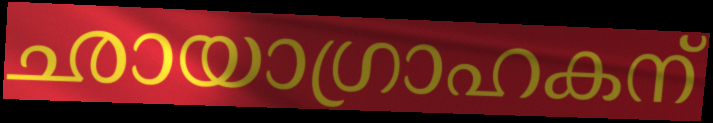
ഛായാഗ്രാഹകന്